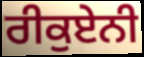
ਰੀਕੁਏਨੀ